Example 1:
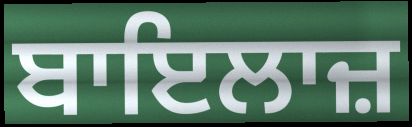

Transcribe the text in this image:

ਬਾਇਲਾਜ਼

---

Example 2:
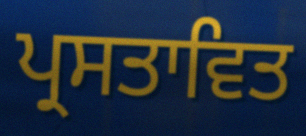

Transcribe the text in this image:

ਪ੍ਰਸਤਾਵਿਤ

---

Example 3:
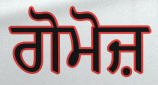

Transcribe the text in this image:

ਗੋਮੋਜ਼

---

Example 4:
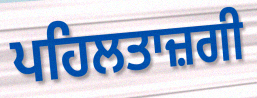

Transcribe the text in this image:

ਪਹਿਲਤਾਜ਼ਗੀ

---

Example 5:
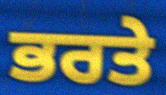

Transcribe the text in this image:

ਭਰਤੇ